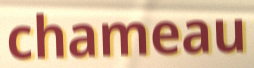
chameau